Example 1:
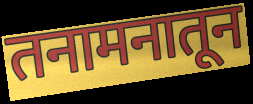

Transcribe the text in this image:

तनामनातून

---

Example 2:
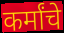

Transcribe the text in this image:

कर्मांचे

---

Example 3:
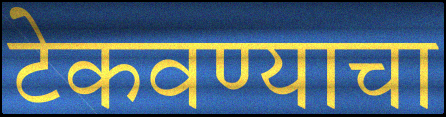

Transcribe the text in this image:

टेकवण्याचा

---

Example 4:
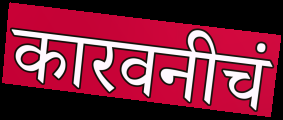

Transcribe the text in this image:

कारवनीचं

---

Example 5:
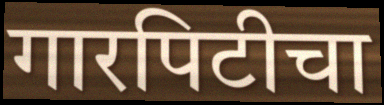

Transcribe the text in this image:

गारपिटीचा